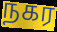
நகர